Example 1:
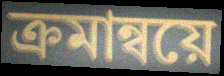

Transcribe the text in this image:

ক্রমান্বয়ে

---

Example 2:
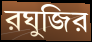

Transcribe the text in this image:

রঘুজির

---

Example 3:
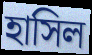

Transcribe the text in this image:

হাসিল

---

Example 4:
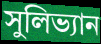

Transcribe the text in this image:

সুলিভ্যান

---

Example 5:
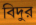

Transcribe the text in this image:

বিদুর